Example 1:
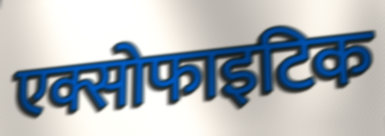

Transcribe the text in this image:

एक्सोफाइटिक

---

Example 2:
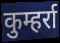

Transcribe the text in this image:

कुम्हर्रा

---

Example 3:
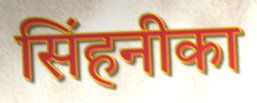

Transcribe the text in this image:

सिंहनीका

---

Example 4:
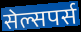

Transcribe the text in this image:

सेल्सपर्स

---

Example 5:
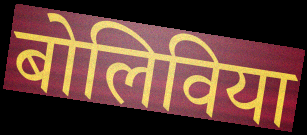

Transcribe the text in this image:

बोलिविया